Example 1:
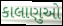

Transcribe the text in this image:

કાલાણુઓ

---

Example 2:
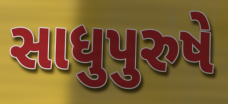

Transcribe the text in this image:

સાધુપુરુષે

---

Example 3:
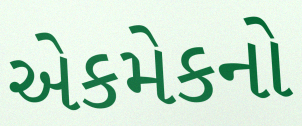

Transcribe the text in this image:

એકમેકનો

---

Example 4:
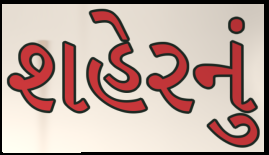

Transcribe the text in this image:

શહેરનું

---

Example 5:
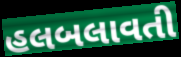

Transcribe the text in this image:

હલબલાવતી